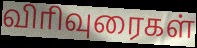
விரிவுரைகள்